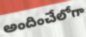
అందించేలోగా